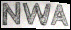
NWA